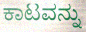
ಕಾಟವನ್ನು